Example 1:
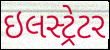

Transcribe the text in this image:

ઇલસ્ટ્રેટર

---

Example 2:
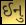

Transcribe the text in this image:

ઈનુ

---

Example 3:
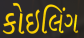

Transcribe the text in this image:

કોઇલિંગ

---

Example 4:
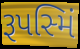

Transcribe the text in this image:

રૂપસ્મિં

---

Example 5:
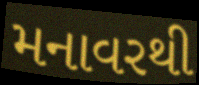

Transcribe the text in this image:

મનાવરથી